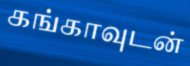
கங்காவுடன்